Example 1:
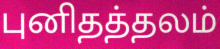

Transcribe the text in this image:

புனிதத்தலம்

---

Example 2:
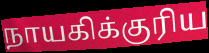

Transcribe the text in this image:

நாயகிக்குரிய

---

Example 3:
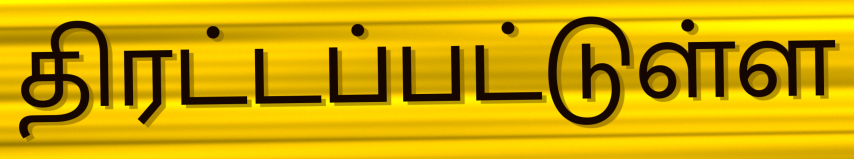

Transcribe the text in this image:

திரட்டப்பட்டுள்ள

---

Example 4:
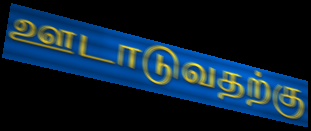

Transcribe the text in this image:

ஊடாடுவதற்கு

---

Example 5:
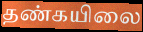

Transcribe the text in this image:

தண்கயிலை